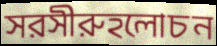
সরসীরুহলোচন